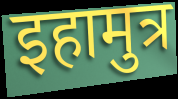
इहामुत्र